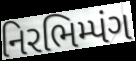
નિરભિમ્પંગ